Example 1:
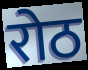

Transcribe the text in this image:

रोठ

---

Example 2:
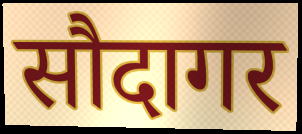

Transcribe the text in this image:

सौदागर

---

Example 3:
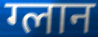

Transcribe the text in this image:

ग्लान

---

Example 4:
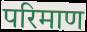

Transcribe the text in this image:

परिमाण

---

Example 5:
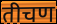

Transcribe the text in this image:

तीचण